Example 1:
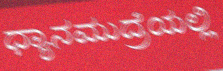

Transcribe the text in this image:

ಧ್ಯಾನಮುದ್ರೆಯಲ್ಲಿ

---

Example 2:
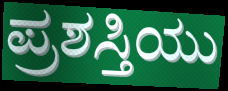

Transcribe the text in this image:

ಪ್ರಶಸ್ತಿಯು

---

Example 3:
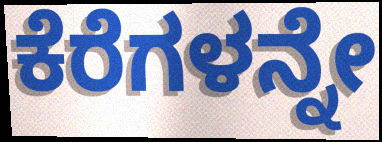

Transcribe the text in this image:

ಕೆರೆಗಳನ್ನೇ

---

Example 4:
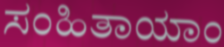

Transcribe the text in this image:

ಸಂಹಿತಾಯಾಂ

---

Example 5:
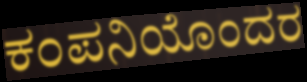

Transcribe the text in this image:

ಕಂಪನಿಯೊಂದರ